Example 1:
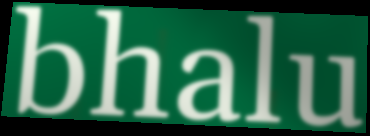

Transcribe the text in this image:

bhalu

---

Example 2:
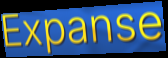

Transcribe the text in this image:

Expanse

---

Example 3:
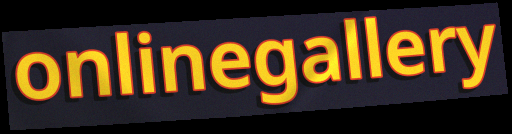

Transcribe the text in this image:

onlinegallery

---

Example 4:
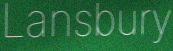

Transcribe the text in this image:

Lansbury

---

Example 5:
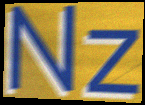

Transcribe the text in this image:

Nz